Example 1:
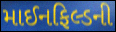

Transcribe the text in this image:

માઈનફિલ્ડની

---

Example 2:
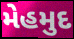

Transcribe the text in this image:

મેહમુદ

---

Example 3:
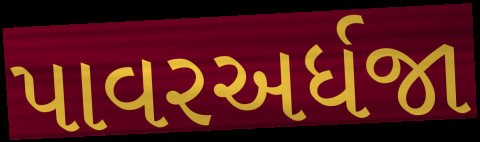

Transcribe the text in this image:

પાવરઅર્ધજા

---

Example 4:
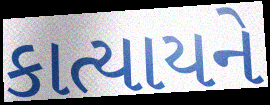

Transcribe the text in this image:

કાત્યાયને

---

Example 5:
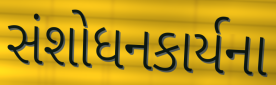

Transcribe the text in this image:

સંશોધનકાર્યના